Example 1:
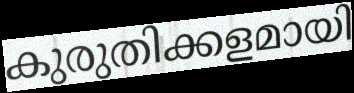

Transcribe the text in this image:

കുരുതിക്കളമായി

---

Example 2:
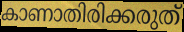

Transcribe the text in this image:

കാണാതിരിക്കരുത്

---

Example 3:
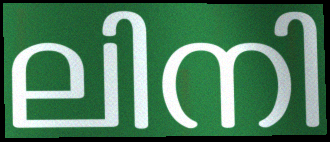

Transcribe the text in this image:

ലിനി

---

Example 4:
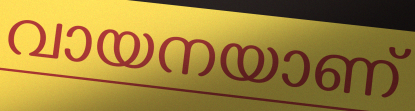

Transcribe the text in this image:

വായനയാണ്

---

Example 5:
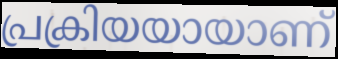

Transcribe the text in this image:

പ്രക്രിയയായാണ്